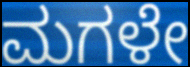
ಮಗಳೇ